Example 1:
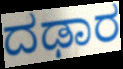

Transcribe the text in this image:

ದಢಾರ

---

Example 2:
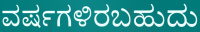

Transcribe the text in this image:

ವರ್ಷಗಳಿರಬಹುದು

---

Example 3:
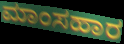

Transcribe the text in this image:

ಮಾಂಸಹಾರ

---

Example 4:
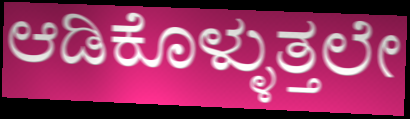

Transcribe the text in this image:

ಆಡಿಕೊಳ್ಳುತ್ತಲೇ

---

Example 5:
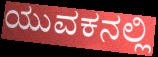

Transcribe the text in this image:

ಯುವಕನಲ್ಲಿ